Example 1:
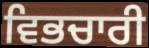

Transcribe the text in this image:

ਵਿਭਚਾਰੀ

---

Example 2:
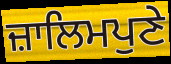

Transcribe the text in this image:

ਜ਼ਾਲਿਮਪੁਣੇ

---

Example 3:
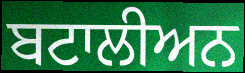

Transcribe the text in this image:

ਬਟਾਲੀਅਨ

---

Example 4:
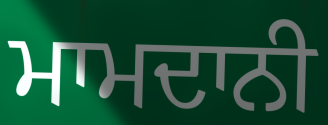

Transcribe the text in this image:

ਮਾਮਦਾਨੀ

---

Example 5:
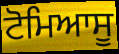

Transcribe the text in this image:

ਟੋਮਿਆਸੂ